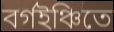
বর্গইঞ্চিতে